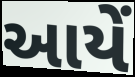
આયેં